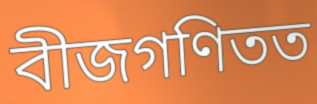
বীজগণিতত